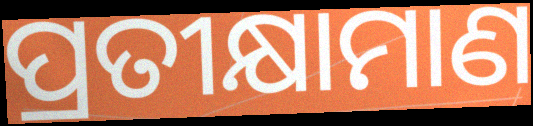
ପ୍ରତୀକ୍ଷାମାଣ